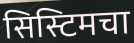
सिस्टिमचा